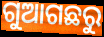
ଗୁଆଗଛରୁ